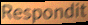
Respondit